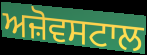
ਅਜ਼ੋਵਸਟਾਲ